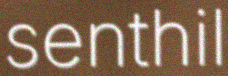
senthil